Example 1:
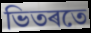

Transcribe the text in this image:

ভিতৰতে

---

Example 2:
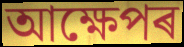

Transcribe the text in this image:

আক্ষেপৰ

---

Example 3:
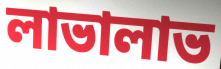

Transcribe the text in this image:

লাভালাভ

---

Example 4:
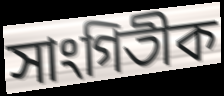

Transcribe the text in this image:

সাংগিতীক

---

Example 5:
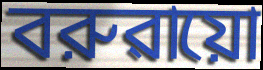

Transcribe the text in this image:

বৰুৱায়ো